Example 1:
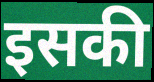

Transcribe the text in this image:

इसकी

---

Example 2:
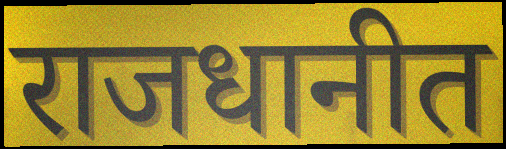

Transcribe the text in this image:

राजधानीत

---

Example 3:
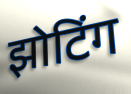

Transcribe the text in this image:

झोटिंग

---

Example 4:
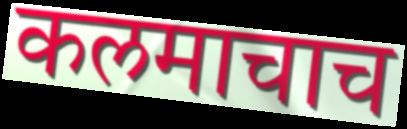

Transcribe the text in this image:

कलमाचाच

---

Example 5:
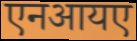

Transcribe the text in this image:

एनआयए